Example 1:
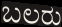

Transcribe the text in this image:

ಬಲರು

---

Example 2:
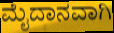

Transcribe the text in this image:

ಮೈದಾನವಾಗಿ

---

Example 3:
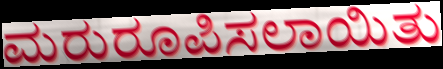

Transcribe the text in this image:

ಮರುರೂಪಿಸಲಾಯಿತು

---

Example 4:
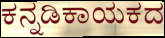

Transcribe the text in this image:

ಕನ್ನಡಿಕಾಯಕದ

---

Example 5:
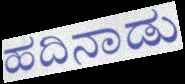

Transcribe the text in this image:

ಹದಿನಾಡು